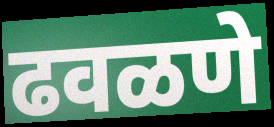
ढवळणे